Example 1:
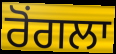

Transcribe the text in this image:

ਰੋਂਗਲਾ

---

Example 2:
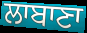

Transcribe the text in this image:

ਲਾਬਾਣਾ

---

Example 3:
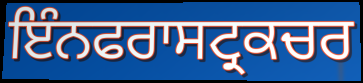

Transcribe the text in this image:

ਇੰਨਫਰਾਸਟ੍ਰਕਚਰ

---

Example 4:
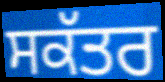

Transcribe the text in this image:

ਸਕੱਤਰ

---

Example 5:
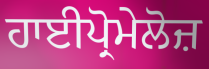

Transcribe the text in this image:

ਹਾਈਪ੍ਰੋਮੇਲੋਜ਼